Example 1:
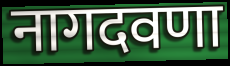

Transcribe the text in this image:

नागदवणा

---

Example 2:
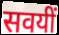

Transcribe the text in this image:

सवयीं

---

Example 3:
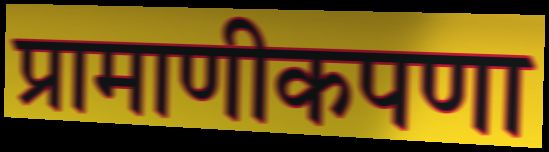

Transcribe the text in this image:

प्रामाणीकपणा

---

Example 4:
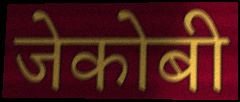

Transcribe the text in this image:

जेकोबी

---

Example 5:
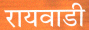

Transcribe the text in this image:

रायवाडी